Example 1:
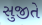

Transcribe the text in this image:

સુજીતે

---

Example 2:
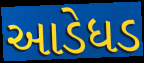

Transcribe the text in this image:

આડેધડ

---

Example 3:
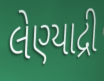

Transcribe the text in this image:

લેણ્યાદ્રી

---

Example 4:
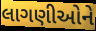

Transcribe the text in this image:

લાગણીઓને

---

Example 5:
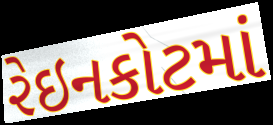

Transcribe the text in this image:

રેઇનકોટમાં